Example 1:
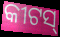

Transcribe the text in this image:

କୀଟସ୍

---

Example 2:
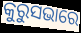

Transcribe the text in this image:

କୁରୁସଭାରେ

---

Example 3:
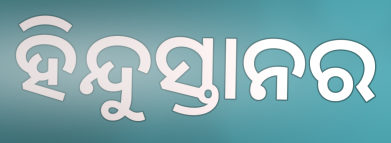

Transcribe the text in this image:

ହିନ୍ଦୁସ୍ତାନର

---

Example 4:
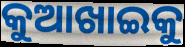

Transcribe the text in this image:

କୁଆଖାଇକୁ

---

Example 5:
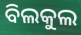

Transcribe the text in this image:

ବିଲକୁଲ